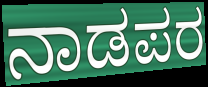
ನಾಡಪರ